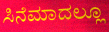
ಸಿನೆಮಾದಲ್ಲೂ